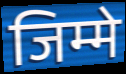
जिम्मे